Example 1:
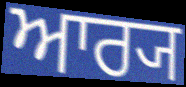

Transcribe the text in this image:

ਆਰ੍ਯ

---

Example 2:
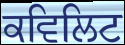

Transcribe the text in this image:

ਕਵਿਲਿਟ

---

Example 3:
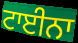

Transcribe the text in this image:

ਟਾਈਨਾ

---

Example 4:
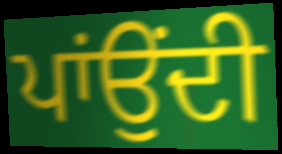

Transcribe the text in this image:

ਪਾਂਉਂਦੀ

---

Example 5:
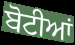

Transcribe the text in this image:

ਬੋਟੀਆਂ